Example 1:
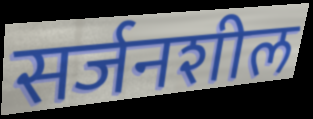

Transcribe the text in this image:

सर्जनशील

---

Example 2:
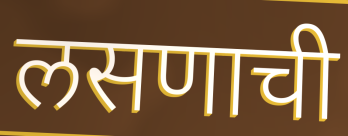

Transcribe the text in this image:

लसणाची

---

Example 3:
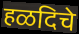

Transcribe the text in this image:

हळदिचे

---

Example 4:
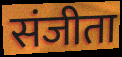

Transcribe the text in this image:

संजीता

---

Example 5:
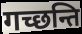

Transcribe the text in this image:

गच्छन्ति